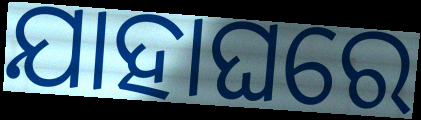
ଯାହାଘରେ